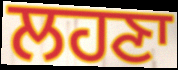
ਲਹਣਾ